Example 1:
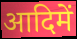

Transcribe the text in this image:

आदिमें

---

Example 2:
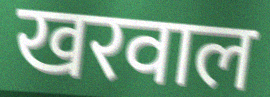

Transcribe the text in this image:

खरवाल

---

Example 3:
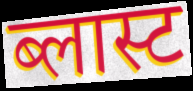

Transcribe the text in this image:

ब्लास्ट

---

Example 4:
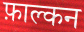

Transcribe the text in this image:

फ़ाल्कन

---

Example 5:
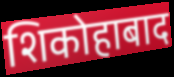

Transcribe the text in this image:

शिकोहाबाद